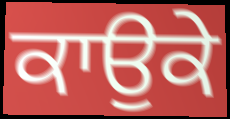
ਕਾਉਕੇ